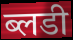
ब्लडी